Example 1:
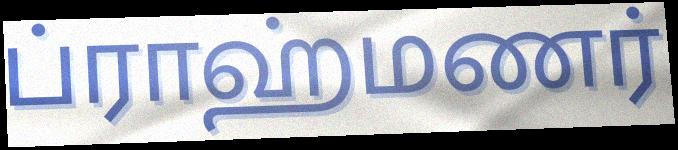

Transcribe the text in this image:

ப்ராஹ்மணர்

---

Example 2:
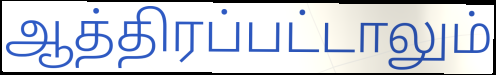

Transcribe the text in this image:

ஆத்திரப்பட்டாலும்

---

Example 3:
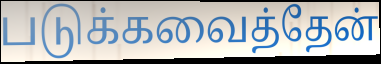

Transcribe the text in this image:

படுக்கவைத்தேன்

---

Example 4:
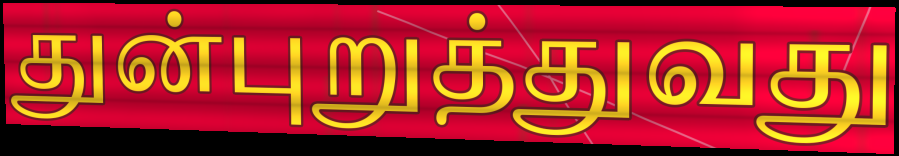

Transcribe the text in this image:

துன்புறுத்துவது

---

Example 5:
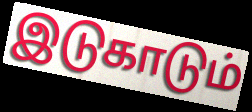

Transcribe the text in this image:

இடுகாடும்